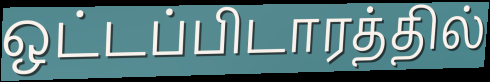
ஒட்டப்பிடாரத்தில்